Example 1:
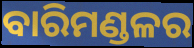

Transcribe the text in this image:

ବାରିମଣ୍ଡଳର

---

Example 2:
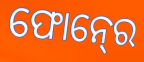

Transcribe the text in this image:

ଫୋନ୍‍ରେ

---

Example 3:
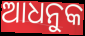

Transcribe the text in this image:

ଆଧନୁକ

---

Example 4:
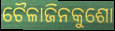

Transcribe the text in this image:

ଚୈଳାଜିନକୁଶୋ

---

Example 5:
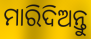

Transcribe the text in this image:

ମାରିଦିଅନ୍ତୁ